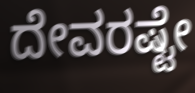
ದೇವರಷ್ಟೇ